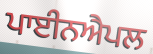
ਪਾਈਨਐਪਲ